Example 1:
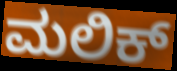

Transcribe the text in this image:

ಮಲಿಕ್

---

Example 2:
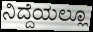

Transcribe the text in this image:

ನಿದ್ದೆಯಲ್ಲೂ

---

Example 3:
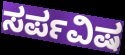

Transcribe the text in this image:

ಸರ್ಪವಿಷ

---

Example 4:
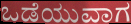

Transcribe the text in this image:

ಒಡೆಯುವಾಗ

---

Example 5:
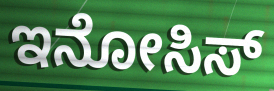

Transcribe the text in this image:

ಇನೋಸಿಸ್